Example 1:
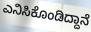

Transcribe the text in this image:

ಎನಿಸಿಕೊಂಡಿದ್ದಾನೆ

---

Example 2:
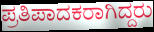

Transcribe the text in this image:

ಪ್ರತಿಪಾದಕರಾಗಿದ್ದರು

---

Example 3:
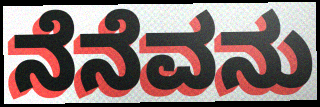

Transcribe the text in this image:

ನೆನೆವನು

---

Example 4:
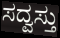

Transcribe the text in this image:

ಸದ್ವಸ್ತು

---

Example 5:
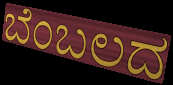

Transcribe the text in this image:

ಬೆಂಬಲದ